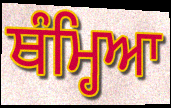
ਥੰਮ੍ਹ੍ਹਿਆ